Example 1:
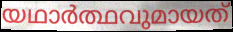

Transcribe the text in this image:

യഥാർത്ഥവുമായത്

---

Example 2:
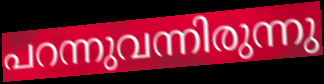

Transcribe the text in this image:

പറന്നുവന്നിരുന്നു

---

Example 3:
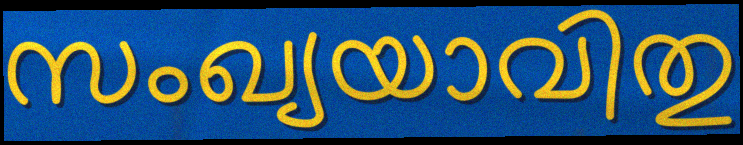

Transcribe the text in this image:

സംഖ്യയാവിതു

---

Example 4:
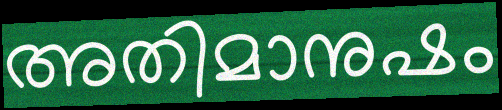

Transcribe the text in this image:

അതിമാനുഷം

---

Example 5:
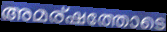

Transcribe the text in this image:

അമര്ഷത്തോടെ